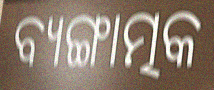
ବ୍ୟଙ୍ଗାତ୍ମକ